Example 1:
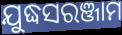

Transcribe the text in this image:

ଯୁଦ୍ଧସରଞ୍ଜାମ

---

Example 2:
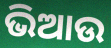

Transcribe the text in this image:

ଭିଆଉ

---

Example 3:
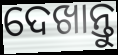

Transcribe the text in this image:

ଦେଖାନ୍ତୁ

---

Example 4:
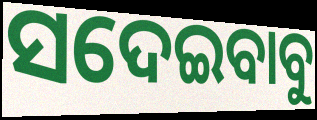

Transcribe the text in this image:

ସଦେଇବାବୁ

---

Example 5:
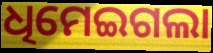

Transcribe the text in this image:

ଧିମେଇଗଲା